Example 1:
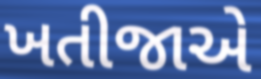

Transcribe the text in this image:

ખતીજાએ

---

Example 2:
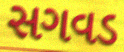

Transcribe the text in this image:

સગવડ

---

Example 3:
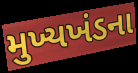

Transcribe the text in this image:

મુખ્યખંડના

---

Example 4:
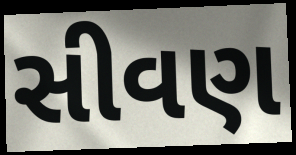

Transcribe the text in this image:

સીવણ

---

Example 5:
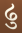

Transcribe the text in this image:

ઢુ